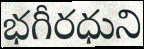
భగీరధుని